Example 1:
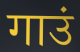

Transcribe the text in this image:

गाउं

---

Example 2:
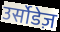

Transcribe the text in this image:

उर्सोडेज़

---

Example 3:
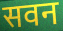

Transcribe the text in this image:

सवन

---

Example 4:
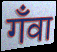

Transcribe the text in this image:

गँवा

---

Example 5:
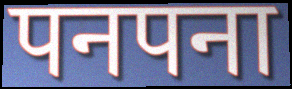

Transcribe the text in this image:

पनपना